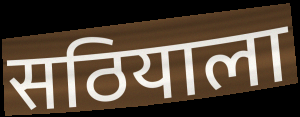
सठियाला